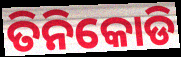
ତିନିକୋଡି